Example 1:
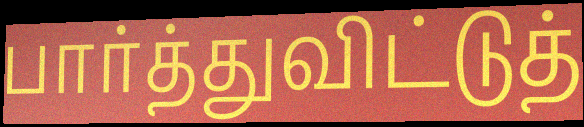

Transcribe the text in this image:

பார்த்துவிட்டுத்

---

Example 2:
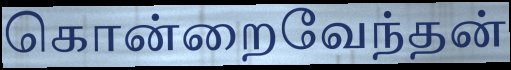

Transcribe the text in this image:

கொன்றைவேந்தன்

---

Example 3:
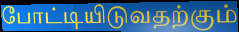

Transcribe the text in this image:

போட்டியிடுவதற்கும்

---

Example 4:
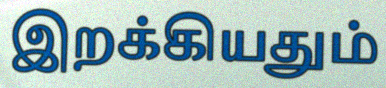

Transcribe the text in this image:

இறக்கியதும்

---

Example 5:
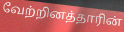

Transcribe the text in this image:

வேற்றினத்தாரின்